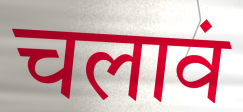
चलावं